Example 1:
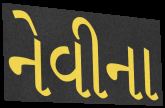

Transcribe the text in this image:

નેવીના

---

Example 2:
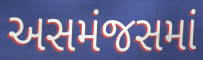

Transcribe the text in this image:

અસમંજસમાં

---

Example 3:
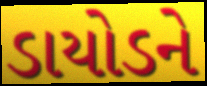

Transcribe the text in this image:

ડાયોડને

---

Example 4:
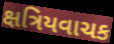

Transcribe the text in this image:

ક્ષત્રિયવાચક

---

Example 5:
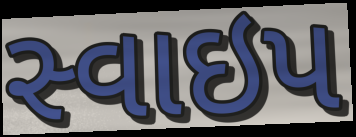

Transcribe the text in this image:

સ્વાઇપ